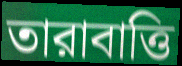
তারাবাত্তি